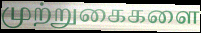
முற்றுகைகளை